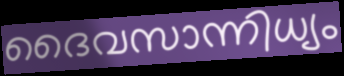
ദൈവസാന്നിധ്യം